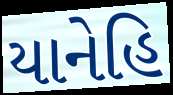
યાનેહિ